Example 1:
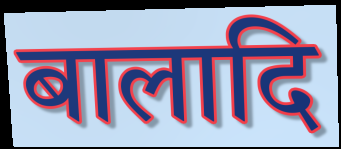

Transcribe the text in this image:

बालादि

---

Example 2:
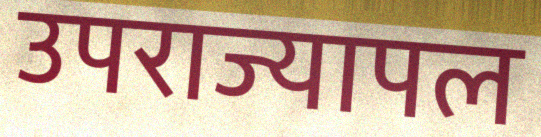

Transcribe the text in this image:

उपराज्यापल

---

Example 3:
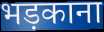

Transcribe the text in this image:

भड़काना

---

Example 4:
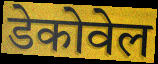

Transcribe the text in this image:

डेकोवेल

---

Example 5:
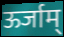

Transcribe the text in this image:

ऊर्जाम्